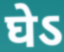
घेऽ